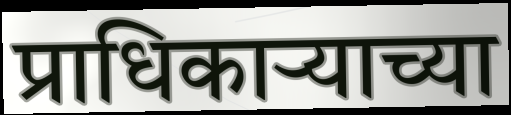
प्राधिकाऱ्याच्या